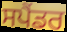
ਸਪੈਂਡਰ